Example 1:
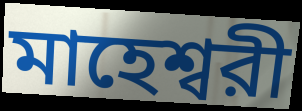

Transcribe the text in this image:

মাহেশ্বরী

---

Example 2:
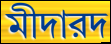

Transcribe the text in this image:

মীদারদ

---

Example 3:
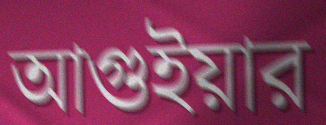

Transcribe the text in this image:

আগুইয়ার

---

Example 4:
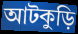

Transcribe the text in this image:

আটকুড়ি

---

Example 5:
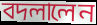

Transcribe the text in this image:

বদলালেন